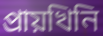
প্ৰায়খিনি